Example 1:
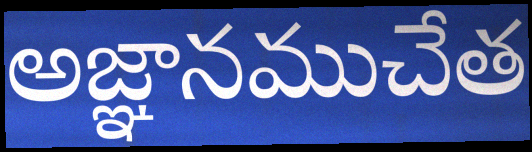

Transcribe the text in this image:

అజ్ఞానముచేత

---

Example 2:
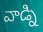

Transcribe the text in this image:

వాడ్ని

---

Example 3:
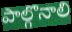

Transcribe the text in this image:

పాల్గొనాలి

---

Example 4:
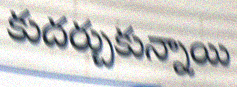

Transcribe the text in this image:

కుదర్చుకున్నాయి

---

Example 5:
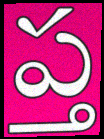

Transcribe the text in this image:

ప్త